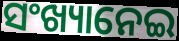
ସଂଖ୍ୟାନେଇ